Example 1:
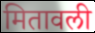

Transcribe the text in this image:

मितावली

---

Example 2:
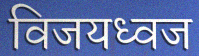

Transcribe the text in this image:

विजयध्वज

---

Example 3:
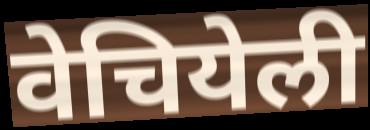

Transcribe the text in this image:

वेचियेली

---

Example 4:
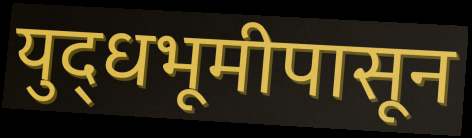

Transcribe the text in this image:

युद्धभूमीपासून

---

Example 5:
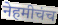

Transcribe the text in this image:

नेहमीचंच